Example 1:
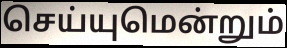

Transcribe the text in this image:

செய்யுமென்றும்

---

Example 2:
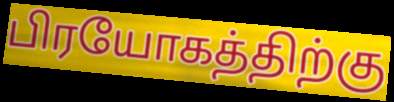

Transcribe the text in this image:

பிரயோகத்திற்கு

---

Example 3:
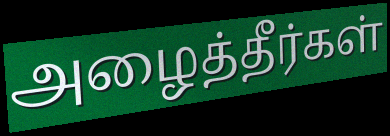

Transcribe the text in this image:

அழைத்தீர்கள்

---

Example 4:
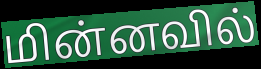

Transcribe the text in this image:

மின்னவில்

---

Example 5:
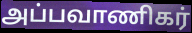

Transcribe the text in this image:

அப்பவாணிகர்